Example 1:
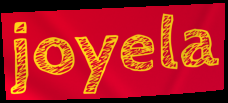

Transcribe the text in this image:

joyela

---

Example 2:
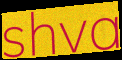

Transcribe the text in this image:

shva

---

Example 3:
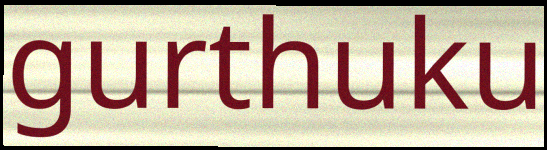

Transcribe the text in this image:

gurthuku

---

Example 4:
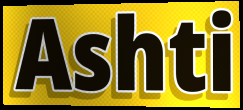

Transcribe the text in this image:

Ashti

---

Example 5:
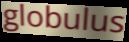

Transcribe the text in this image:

globulus